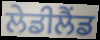
ਲੇਡੀਲੈਂਡ